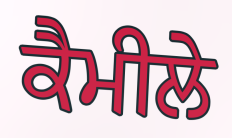
ਕੈਮੀਲੇ